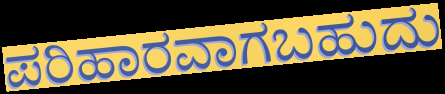
ಪರಿಹಾರವಾಗಬಹುದು